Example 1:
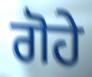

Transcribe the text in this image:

ਗੋਹੇ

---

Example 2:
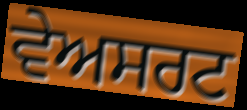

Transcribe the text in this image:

ਵੇਅਸਰਟ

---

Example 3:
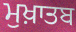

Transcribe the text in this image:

ਮੁਖ਼ਾਤਬ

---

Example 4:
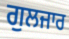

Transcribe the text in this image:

ਗੁਲਜਾਰ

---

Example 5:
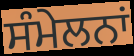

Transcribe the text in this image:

ਸੰਮੇਲਨਾਂ